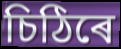
চিঠিৰে